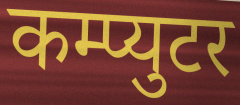
कम्प्युटर